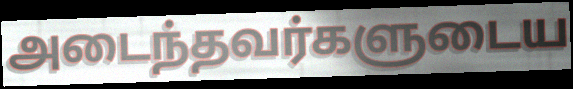
அடைந்தவர்களுடைய